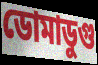
ডোমাডুগু